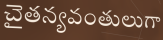
చైతన్యవంతులుగా